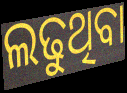
ଲଢୁଥିବା